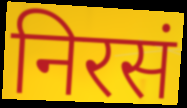
निरसं